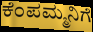
ಕೆಂಪಮ್ಮನಿಗೆ